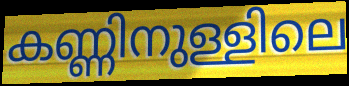
കണ്ണിനുള്ളിലെ